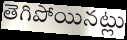
తెగిపోయినట్లు